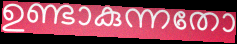
ഉണ്ടാകുന്നതോ